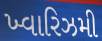
ખ્વારિઝમી